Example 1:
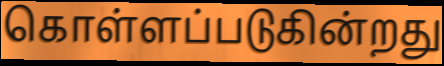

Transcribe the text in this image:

கொள்ளப்படுகின்றது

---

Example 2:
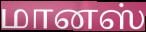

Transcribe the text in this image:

மானஸ்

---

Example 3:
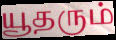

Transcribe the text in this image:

யூதரும்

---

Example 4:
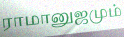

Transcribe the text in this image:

ராமானுஜமும்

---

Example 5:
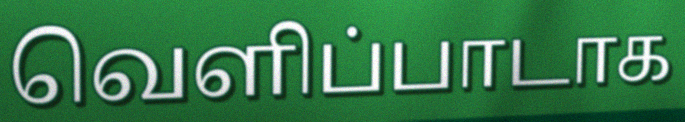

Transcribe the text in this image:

வெளிப்பாடாக